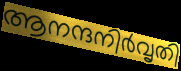
ആനന്ദനിർവൃതി